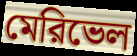
মেরিভেল